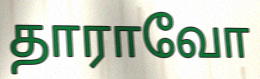
தாராவோ